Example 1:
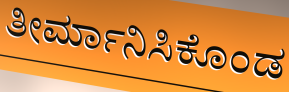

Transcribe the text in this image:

ತೀರ್ಮಾನಿಸಿಕೊಂಡ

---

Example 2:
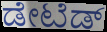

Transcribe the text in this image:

ಡೇಟೆಡ್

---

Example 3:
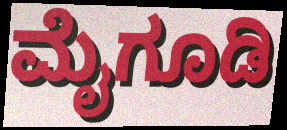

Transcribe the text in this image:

ಮೈಗೂಡಿ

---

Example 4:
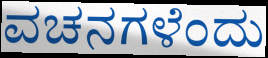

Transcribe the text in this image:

ವಚನಗಳೆಂದು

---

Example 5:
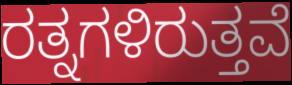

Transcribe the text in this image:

ರತ್ನಗಳಿರುತ್ತವೆ